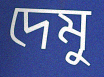
দেমু